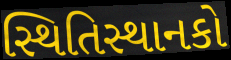
સ્થિતિસ્થાનકો